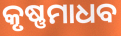
କୃଷ୍ଣମାଧବ